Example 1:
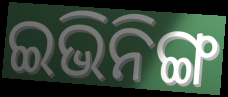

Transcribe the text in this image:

ଇଭିନିଙ୍ଗ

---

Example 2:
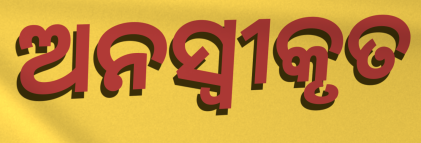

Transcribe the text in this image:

ଅନସ୍ବୀକୃତ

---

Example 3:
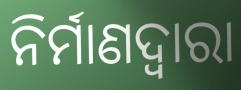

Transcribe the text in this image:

ନିର୍ମାଣଦ୍ୱାରା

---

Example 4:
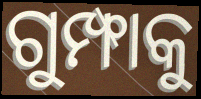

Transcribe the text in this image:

ଗୁମ୍ଫାକୁ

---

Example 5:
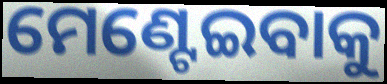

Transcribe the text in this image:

ମେଣ୍ଟେଇବାକୁ